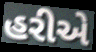
હરીએ